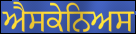
ਐਸਕੇਨਿਅਸ